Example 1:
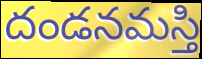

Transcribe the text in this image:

దండనమస్తి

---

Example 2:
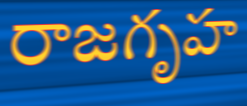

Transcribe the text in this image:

రాజగృహ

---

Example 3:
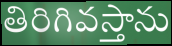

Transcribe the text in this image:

తిరిగివస్తాను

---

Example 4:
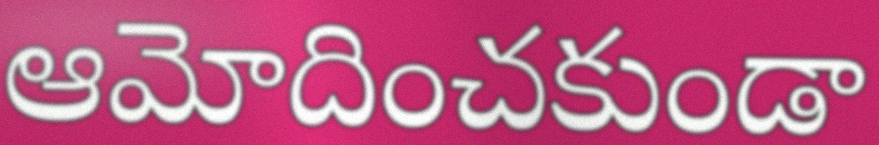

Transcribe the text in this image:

ఆమోదించకుండా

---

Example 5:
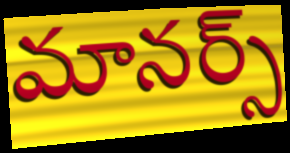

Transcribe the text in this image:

మానర్స్